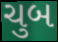
ચુબ